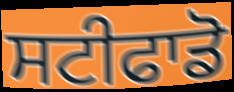
ਸਟੀਫਾਡੋ